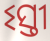
ଽସ୍ତୀ